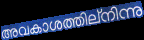
അവകാശത്തില്നിന്നു